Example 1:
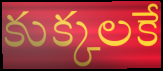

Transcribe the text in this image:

కుక్కలకే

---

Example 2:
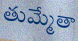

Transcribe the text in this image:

తుమ్మేతా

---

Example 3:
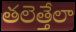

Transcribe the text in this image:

తలెత్తేలా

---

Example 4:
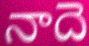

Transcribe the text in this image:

నాదె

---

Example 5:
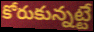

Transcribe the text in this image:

కోరుకున్నట్టే